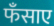
फँसाए